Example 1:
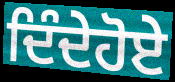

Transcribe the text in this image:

ਦਿੰਦੇਹੋਏ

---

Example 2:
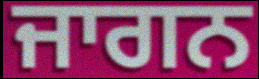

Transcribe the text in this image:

ਜਾਗਨ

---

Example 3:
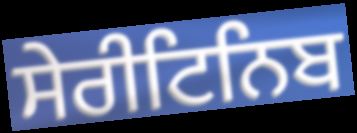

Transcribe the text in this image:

ਸੇਰੀਟਿਨਿਬ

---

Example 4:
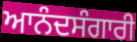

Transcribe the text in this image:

ਆਨੰਦਸੰਗਾਰੀ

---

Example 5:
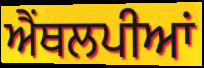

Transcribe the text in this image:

ਐਂਥਲਪੀਆਂ